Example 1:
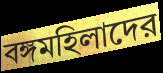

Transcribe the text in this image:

বঙ্গমহিলাদের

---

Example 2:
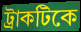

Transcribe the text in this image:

ট্রাকটিকে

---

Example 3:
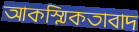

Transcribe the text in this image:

আকস্মিকতাবাদ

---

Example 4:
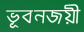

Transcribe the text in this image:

ভূবনজয়ী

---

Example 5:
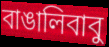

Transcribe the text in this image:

বাঙালিবাবু